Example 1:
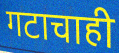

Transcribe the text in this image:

गटाचाही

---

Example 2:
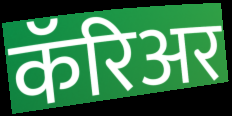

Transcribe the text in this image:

कॅरिअर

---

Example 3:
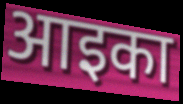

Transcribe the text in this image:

आइका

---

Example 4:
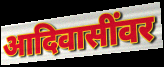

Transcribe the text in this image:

आदिवासींवर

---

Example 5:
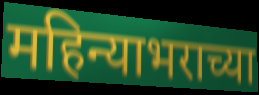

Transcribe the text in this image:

महिन्याभराच्या